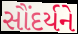
સૌંદર્યને